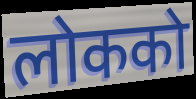
लोकको